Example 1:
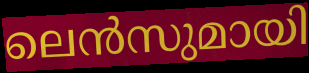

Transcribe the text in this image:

ലെൻസുമായി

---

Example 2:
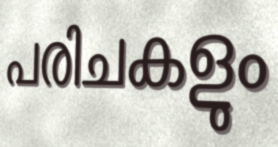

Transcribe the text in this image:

പരിചകളും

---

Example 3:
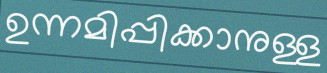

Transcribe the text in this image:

ഉന്നമിപ്പിക്കാനുള്ള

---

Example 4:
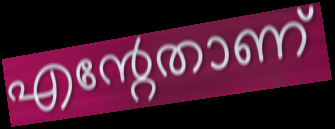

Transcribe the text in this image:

എന്റേതാണ്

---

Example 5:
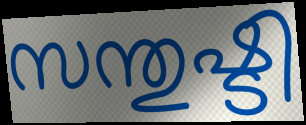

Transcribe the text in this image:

സന്തുഷ്ടി